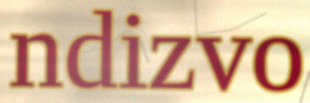
ndizvo